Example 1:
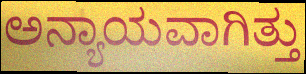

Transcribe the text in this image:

ಅನ್ಯಾಯವಾಗಿತ್ತು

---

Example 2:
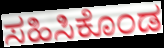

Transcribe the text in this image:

ಸಹಿಸಿಕೊಂಡ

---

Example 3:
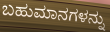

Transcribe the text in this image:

ಬಹುಮಾನಗಳನ್ನು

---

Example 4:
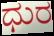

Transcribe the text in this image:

ಧುರ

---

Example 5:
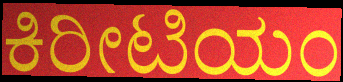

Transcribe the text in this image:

ಕಿರೀಟಿಯಂ